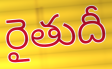
రైతుదీ